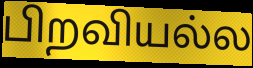
பிறவியல்ல